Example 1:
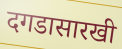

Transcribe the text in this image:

दगडासारखी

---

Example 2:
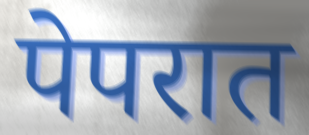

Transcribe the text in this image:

पेपरात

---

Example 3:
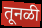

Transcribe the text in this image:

तूनळी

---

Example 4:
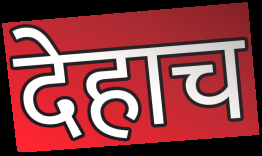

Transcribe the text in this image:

देहाच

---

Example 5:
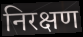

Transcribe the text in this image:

निरक्षण